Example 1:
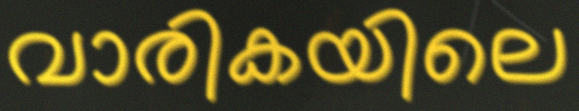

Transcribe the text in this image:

വാരികയിലെ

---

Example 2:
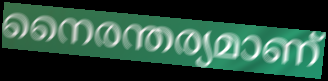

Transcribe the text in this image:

നൈരന്തര്യമാണ്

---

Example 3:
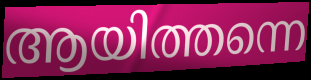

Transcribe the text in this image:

ആയിത്തന്നെ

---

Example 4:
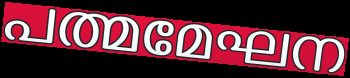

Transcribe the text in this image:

പത്മമേഘന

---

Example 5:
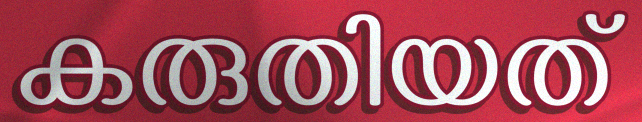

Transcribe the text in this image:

കരുതിയത്